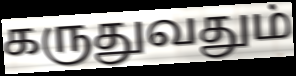
கருதுவதும்